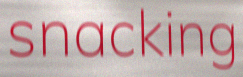
snacking